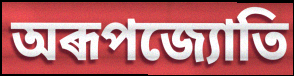
অৰূপজ্যোতি